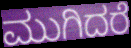
ಮುಗಿದರೆ